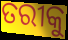
ତରୀକୁ